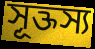
সূক্তস্য